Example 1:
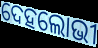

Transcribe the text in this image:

ଦେହଲୋଭୀ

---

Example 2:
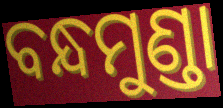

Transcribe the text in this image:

ବନ୍ଧମୁଣ୍ଡା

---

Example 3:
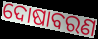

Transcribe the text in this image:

ଦୋଷାବରଣ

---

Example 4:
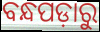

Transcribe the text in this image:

ବନ୍ଧପଡ଼ାରୁ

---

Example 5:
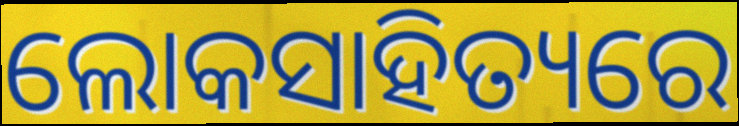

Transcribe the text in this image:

ଲୋକସାହିତ୍ୟରେ